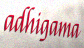
adhigama